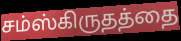
சம்ஸ்கிருதத்தை